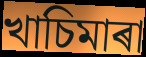
খাচিমাৰা